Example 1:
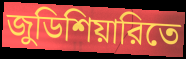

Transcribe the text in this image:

জুডিশিয়ারিতে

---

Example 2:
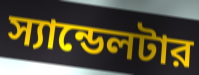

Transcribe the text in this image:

স্যান্ডেলটার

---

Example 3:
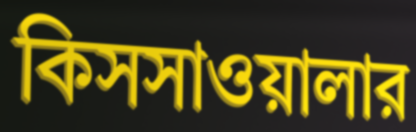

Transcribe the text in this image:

কিসসাওয়ালার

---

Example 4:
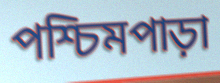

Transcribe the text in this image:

পশ্চিমপাড়া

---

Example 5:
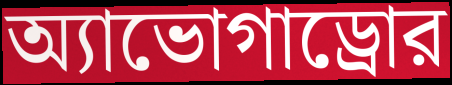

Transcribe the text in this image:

অ্যাভোগাড্রোর